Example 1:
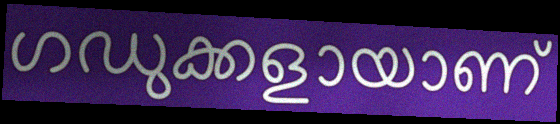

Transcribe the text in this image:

ഗഡുക്കളായാണ്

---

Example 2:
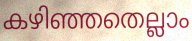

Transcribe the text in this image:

കഴിഞ്ഞതെല്ലാം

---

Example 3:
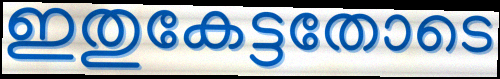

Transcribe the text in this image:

ഇതുകേട്ടതോടെ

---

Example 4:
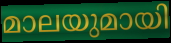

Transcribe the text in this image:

മാലയുമായി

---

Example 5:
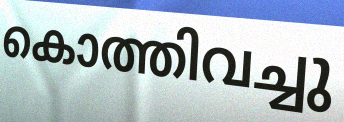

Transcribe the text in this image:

കൊത്തിവച്ചു